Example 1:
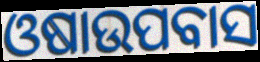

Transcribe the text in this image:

ଓଷାଉପବାସ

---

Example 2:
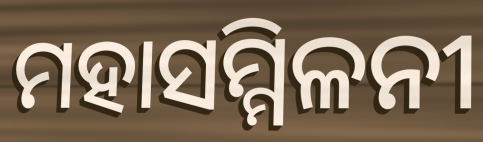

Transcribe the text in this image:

ମହାସମ୍ମିଳନୀ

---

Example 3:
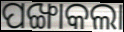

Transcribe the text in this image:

ପଙ୍ଖାକଲା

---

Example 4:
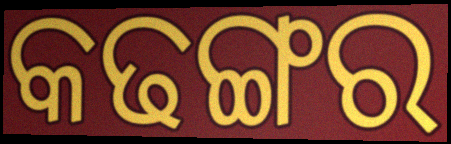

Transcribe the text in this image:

କଢଙ୍ଗର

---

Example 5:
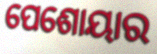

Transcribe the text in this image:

ପେଶୋୟାର